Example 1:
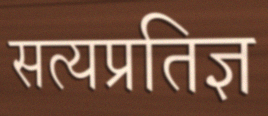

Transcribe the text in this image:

सत्यप्रतिज्ञ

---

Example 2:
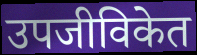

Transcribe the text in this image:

उपजीविकेत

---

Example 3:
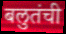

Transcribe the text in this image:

बलुतंची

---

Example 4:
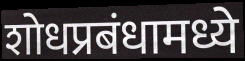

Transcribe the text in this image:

शोधप्रबंधामध्ये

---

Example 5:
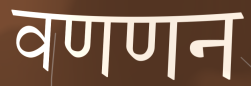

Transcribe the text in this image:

वणणन